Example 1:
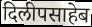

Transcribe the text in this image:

दिलीपसाहेब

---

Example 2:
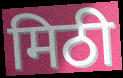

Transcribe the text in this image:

मिठी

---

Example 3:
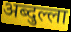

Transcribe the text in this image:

अब्दुल्ला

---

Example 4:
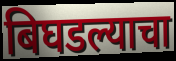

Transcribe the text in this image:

बिघडल्याचा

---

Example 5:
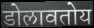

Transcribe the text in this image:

डोलावतोय